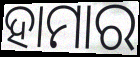
ହାମାର